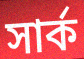
সার্ক